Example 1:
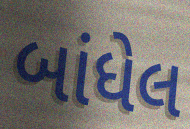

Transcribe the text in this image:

બાંધેલ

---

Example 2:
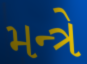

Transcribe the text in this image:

મન્ત્રે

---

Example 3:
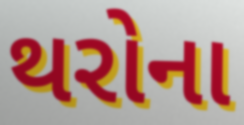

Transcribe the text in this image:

થરોના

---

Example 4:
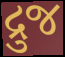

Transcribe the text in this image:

દ્રુજ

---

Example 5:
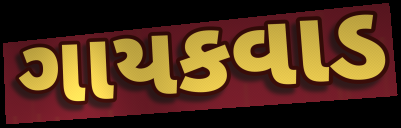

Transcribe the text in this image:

ગાયકવાડ